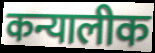
कन्यालीक